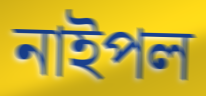
নাইপল